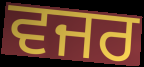
ਵਜਰ